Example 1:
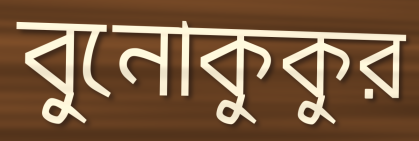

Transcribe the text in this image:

বুনোকুকুর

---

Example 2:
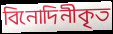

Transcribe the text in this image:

বিনোদিনীকৃত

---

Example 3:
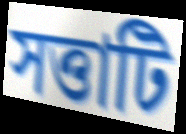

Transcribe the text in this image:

সত্তাটি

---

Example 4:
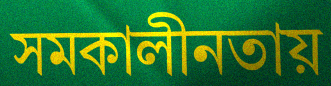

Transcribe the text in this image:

সমকালীনতায়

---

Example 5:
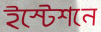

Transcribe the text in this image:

ইস্টেশনে